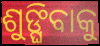
ଶୁଙ୍ଘିବାକୁ